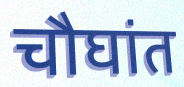
चौघांत